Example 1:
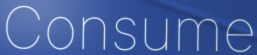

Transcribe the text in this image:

Consume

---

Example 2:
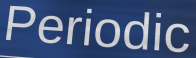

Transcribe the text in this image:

Periodic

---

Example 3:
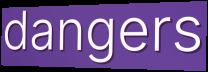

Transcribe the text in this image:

dangers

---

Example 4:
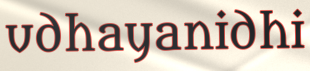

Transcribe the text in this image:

udhayanidhi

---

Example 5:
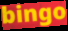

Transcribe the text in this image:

bingo